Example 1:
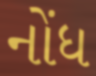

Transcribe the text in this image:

નોંધ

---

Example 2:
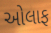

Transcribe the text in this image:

ઓલાફ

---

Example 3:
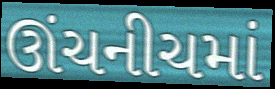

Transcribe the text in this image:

ઊંચનીચમાં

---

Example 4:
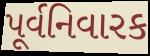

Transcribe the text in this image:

પૂર્વનિવારક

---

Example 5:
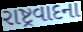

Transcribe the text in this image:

રાષ્ટ્રવાદના